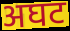
अघट